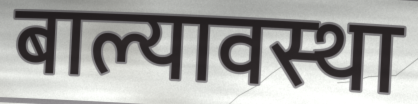
बाल्यावस्था